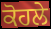
ਕੋਹਲੇ